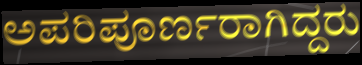
ಅಪರಿಪೂರ್ಣರಾಗಿದ್ದರು